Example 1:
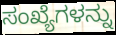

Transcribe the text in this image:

ಸಂಖ್ಯೆಗಳನ್ನು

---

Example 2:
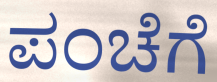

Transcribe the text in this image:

ಪಂಚೆಗೆ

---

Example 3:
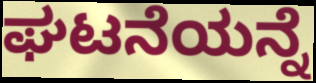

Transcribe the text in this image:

ಘಟನೆಯನ್ನೆ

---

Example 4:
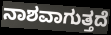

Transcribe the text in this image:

ನಾಶವಾಗುತ್ತದೆ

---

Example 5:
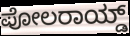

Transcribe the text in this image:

ಪೋಲರಾಯ್ಡ್